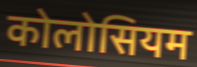
कोलोसियम